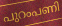
പുറംപണി